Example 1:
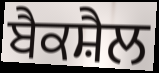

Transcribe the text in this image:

ਬੈਕਸ਼ੈਲ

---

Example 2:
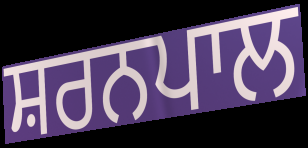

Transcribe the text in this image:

ਸ਼ਰਨਪਾਲ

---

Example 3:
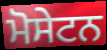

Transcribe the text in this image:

ਮੋਸੇਟਨ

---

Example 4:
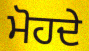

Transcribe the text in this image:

ਮੋਹਦੇ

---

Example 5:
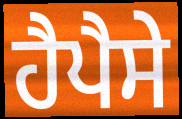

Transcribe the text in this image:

ਹੈਪੈਸੇ